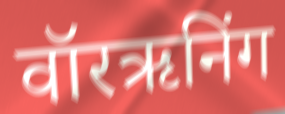
वॉरऋनिंग